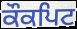
ਕੌਕਪਿਟ